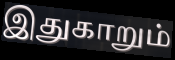
இதுகாறும்